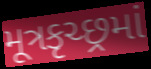
મૂત્રકૃચ્છ્રમાં